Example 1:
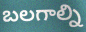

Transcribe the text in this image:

బలగాల్ని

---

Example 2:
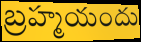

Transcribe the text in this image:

బ్రహ్మయందు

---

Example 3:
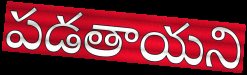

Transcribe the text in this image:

పడతాయని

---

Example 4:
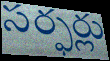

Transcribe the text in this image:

సర్ఫర్లు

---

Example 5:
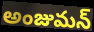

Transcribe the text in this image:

అంజుమన్